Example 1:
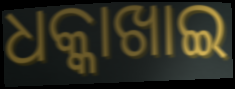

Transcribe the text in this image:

ଧକ୍କାଖାଇ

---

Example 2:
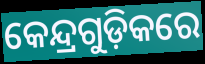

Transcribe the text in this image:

କେନ୍ଦ୍ରଗୁଡ଼ିକରେ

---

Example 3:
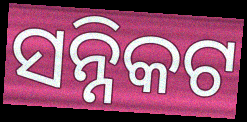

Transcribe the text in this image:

ସନ୍ନିକଟ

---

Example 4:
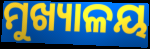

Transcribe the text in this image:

ମୁଖ୍ୟାଳୟ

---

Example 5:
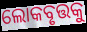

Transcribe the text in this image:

ଲୋକବୃତ୍ତକୁ